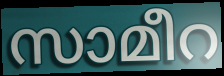
സാമീറ